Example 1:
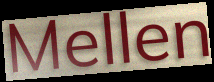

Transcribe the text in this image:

Mellen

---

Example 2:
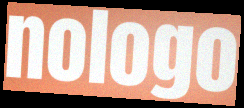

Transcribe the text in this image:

nologo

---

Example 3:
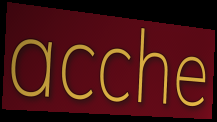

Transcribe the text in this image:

acche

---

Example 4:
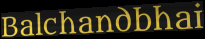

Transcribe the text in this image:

Balchandbhai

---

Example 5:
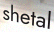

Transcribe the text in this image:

shetal